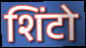
शिंटो